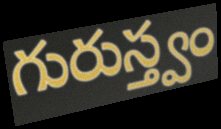
గురుస్త్వం